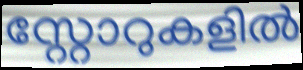
സ്റ്റോറുകളിൽ